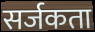
सर्जकता